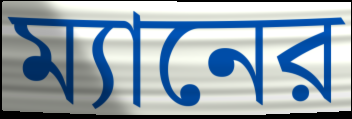
ম্যানের